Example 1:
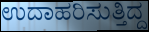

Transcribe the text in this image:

ಉದಾಹರಿಸುತ್ತಿದ್ದ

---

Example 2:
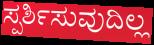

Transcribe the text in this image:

ಸ್ಪರ್ಶಿಸುವುದಿಲ್ಲ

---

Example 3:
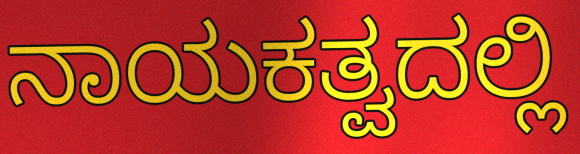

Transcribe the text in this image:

ನಾಯಕತ್ವದಲ್ಲಿ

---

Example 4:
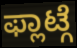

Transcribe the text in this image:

ಫ್ಲಾಟ್ಗೆ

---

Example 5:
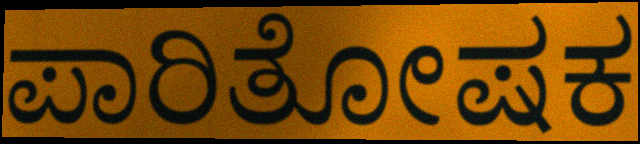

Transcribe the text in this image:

ಪಾರಿತೋಷಕ